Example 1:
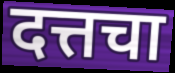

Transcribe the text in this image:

दत्तचा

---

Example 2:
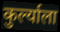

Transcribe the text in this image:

कुर्ल्याला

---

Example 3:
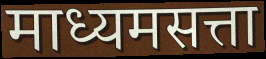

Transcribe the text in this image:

माध्यमसत्ता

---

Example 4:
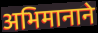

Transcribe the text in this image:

अभिमानाने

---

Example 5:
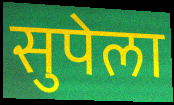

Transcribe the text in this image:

सुपेला